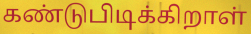
கண்டுபிடிக்கிறாள்